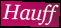
Hauff